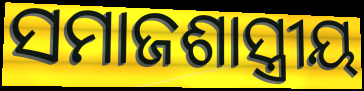
ସମାଜଶାସ୍ତ୍ରୀୟ